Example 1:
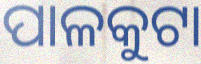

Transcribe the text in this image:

ପାଳକୁଟା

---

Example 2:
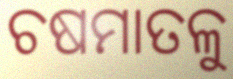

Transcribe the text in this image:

ଚଷମାତଳୁ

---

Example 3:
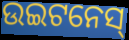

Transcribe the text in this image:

ଉଇଟନେସ୍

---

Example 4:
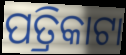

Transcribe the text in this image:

ପତ୍ରିକାଟା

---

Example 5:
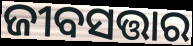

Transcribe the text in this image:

ଜୀବସତ୍ତାର